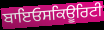
ਬਾਇਓਸਕਿਊਰਿਟੀ